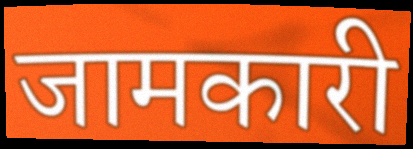
जामकारी